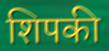
शिपकी